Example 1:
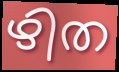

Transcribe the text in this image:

ഴിത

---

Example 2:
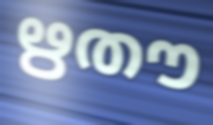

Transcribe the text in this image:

ഋതൗ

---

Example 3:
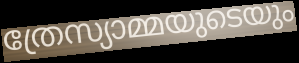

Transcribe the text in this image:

ത്രേസ്യാമ്മയുടെയും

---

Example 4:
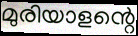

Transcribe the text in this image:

മുരിയാളന്റെ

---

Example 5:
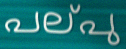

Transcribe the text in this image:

പല്‌പു